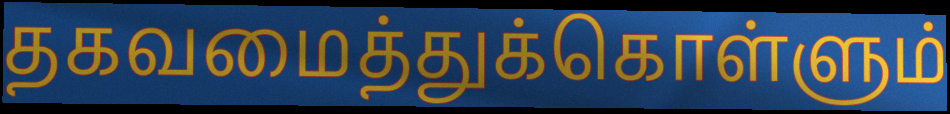
தகவமைத்துக்கொள்ளும்